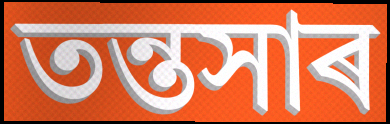
তন্তসাৰ